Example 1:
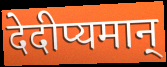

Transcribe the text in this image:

देदीप्यमान्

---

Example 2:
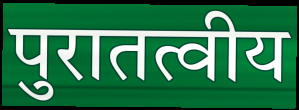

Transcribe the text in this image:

पुरातत्वीय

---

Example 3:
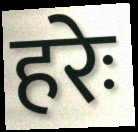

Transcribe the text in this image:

हरेः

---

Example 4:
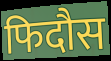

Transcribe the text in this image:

फिदौस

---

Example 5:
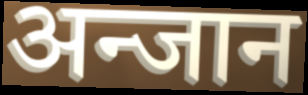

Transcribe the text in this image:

अन्जान